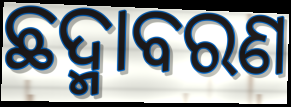
ଛଦ୍ମାବରଣ